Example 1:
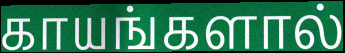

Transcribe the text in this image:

காயங்களால்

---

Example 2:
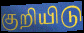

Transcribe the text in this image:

குறியிடு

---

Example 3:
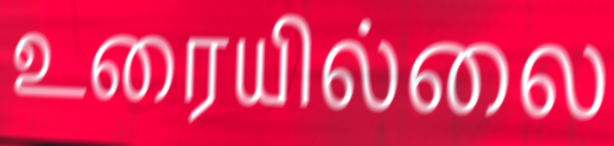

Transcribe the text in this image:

உரையில்லை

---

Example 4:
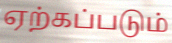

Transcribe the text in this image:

ஏற்கப்படும்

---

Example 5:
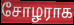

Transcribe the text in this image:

சோழராக